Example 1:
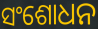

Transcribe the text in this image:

ସଂଶୋଧନ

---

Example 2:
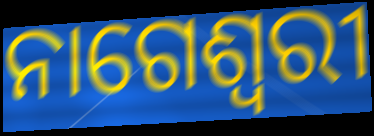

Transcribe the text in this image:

ନାଗେଶ୍ୱରୀ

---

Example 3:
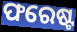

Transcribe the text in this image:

ଫରେଷ୍ଟ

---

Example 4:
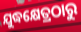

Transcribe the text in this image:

ଯୁଦ୍ଧକ୍ଷେତ୍ରଠାରୁ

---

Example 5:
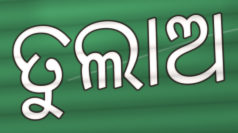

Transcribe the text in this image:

ତୁଲାଅ